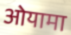
ओयामा